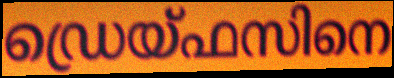
ഡ്രെയ്ഫസിനെ